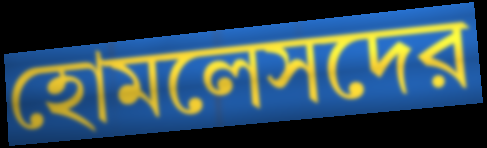
হোমলেসদের